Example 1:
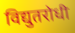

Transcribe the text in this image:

विद्युतरोधी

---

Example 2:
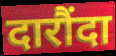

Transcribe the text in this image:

दारौंदा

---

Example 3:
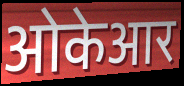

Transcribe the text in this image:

ओकेआर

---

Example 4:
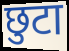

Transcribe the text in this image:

छुटा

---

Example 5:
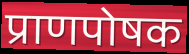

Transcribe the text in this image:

प्राणपोषक